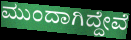
ಮುಂದಾಗಿದ್ದೇವೆ